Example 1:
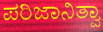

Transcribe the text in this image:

ಪರಿಜಾನಿತ್ವಾ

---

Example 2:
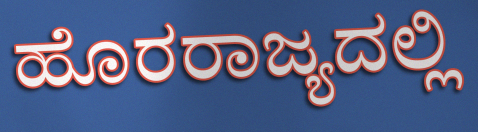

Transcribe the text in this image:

ಹೊರರಾಜ್ಯದಲ್ಲಿ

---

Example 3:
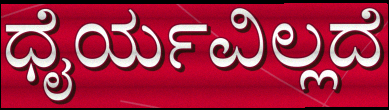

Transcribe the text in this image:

ಧೈರ್ಯವಿಲ್ಲದೆ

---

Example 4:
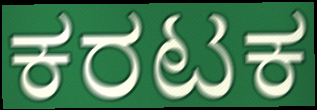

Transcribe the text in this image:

ಕರಟಕ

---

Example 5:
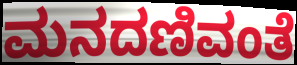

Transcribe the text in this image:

ಮನದಣಿವಂತೆ